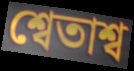
শ্বেতাশ্ব